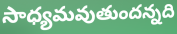
సాధ్యమవుతుందన్నది